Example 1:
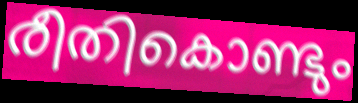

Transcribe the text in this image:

രീതികൊണ്ടും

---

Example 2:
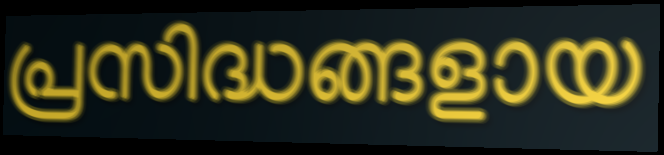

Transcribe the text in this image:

പ്രസിദ്ധങ്ങളായ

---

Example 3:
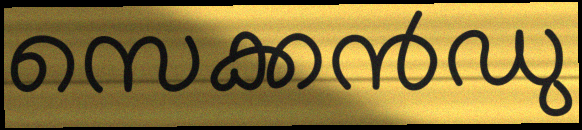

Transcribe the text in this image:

സെക്കൻഡു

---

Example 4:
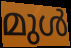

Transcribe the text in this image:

മുൾ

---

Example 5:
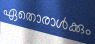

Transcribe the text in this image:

ഏതൊരാൾക്കും